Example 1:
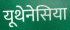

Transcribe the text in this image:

यूथेनेसिया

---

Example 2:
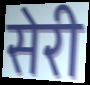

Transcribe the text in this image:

सेरी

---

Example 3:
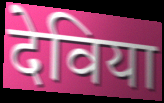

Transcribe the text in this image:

देविया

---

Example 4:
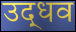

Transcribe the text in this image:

उद्धव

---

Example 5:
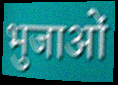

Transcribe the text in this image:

भुजाओं